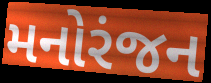
મનોરંજન